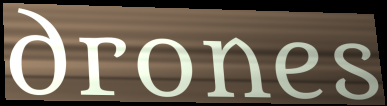
drones